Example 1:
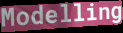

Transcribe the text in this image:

Modelling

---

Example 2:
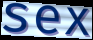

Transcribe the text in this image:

sex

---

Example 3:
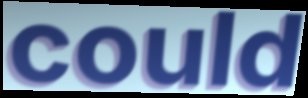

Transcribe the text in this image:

could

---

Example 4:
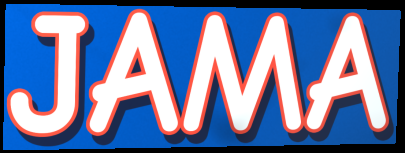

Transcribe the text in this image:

JAMA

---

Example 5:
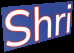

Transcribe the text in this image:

Shri